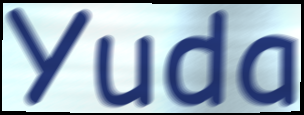
Yuda